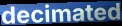
decimated